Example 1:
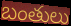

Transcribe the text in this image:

బంతులు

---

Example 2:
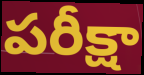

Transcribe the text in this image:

పరీక్షా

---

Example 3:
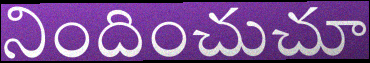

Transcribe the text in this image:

నిందించుచూ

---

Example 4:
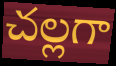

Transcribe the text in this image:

చల్లగా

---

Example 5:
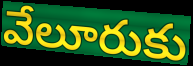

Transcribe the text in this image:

వేలూరుకు